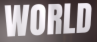
WORLD